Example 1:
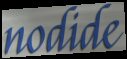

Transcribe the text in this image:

nodide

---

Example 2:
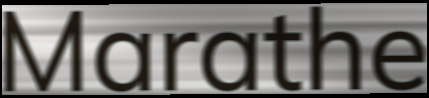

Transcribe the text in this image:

Marathe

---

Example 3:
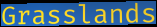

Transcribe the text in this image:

Grasslands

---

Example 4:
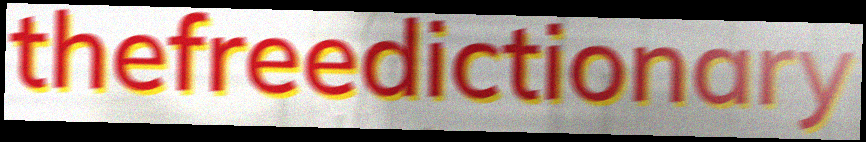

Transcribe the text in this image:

thefreedictionary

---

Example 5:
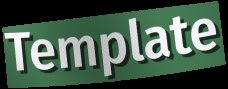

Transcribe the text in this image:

Template